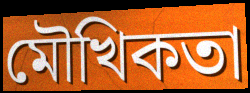
মৌখিকতা